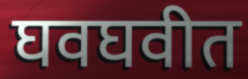
घवघवीत